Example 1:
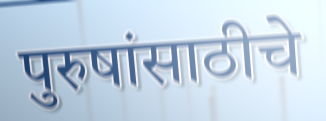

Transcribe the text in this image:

पुरुषांसाठीचे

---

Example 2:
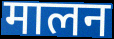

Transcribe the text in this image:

मालन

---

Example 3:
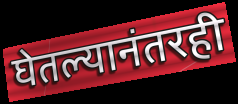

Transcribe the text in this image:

घेतल्यानंतरही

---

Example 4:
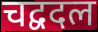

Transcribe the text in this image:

चद्वदल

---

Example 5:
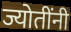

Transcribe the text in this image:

ज्योतींनी